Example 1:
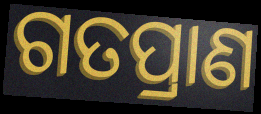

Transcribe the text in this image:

ଗତପ୍ରାଣ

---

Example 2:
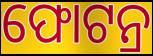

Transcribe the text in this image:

ଫୋଟନ୍ର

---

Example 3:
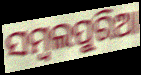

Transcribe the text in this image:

ସମ୍ୱଲପୁରିଆ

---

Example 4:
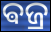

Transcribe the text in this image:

ଵଜ୍ର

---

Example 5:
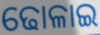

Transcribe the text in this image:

ଢୋଳାଇ